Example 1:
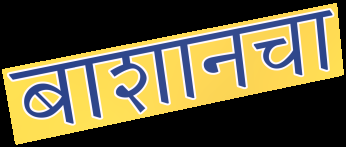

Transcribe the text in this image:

बाशानचा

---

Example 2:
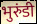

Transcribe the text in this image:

भुरुंडी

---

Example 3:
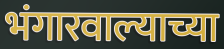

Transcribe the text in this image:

भंगारवाल्याच्या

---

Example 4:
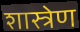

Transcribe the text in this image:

शास्त्रेण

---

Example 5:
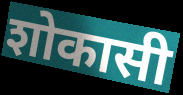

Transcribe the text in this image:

शोकासी